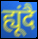
ह्यूंदै